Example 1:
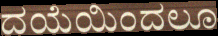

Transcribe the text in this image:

ದಯೆಯಿಂದಲೂ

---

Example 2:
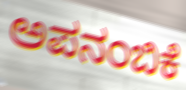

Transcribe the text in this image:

ಅಪನಂಬಿಕೆ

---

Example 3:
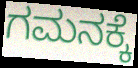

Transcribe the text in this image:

ಗಮನಕ್ಕೆ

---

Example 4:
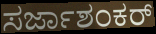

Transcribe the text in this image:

ಸರ್ಜಾಶಂಕರ್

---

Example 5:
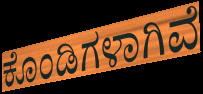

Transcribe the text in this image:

ಕೊಂಡಿಗಳಾಗಿವೆ